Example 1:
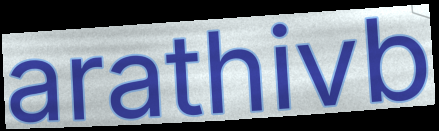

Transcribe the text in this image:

arathivb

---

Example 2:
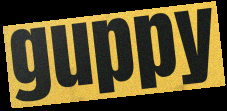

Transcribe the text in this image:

guppy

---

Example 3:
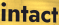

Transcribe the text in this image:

intact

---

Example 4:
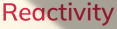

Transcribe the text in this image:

Reactivity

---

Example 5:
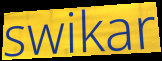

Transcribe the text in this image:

swikar